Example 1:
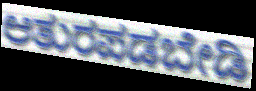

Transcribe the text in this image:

ಆತುರಪಡಬೇಡಿ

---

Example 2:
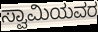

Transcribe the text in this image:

ಸ್ವಾಮಿಯವರ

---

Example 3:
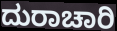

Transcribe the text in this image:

ದುರಾಚಾರಿ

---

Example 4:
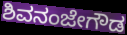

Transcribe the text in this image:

ಶಿವನಂಜೇಗೌಡ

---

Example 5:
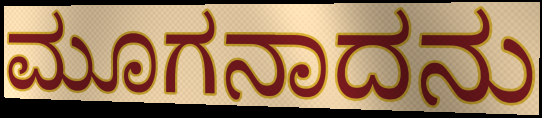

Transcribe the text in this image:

ಮೂಗನಾದನು